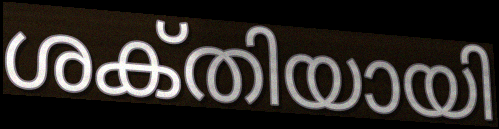
ശക്‌തിയായി